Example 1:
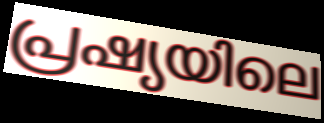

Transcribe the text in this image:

പ്രഷ്യയിലെ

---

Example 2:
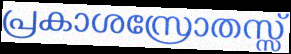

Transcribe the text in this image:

പ്രകാശസ്രോതസ്സ്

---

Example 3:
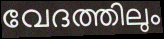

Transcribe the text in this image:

വേദത്തിലും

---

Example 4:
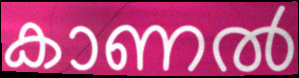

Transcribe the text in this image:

കാണൽ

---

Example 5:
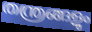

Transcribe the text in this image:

തന്ത്രങ്ങളും